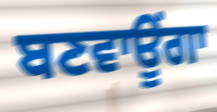
ਬਣਵਾਊਂਗਾ